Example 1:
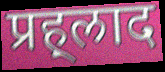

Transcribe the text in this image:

प्रह्‌लाद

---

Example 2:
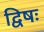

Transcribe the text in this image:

द्विषः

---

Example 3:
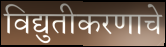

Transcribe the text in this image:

विद्युतीकरणाचे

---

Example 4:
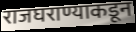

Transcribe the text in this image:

राजघराण्याकडून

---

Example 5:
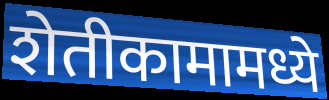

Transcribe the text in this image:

शेतीकामामध्ये